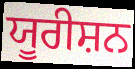
ਯੂਰੀਸ਼ਨ